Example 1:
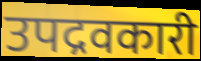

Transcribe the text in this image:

उपद्रवकारी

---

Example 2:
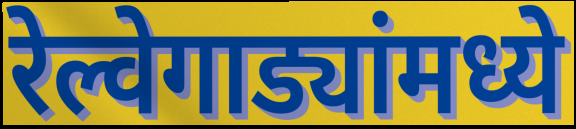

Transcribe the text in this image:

रेल्वेगाड्यांमध्ये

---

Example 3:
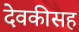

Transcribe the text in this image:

देवकीसह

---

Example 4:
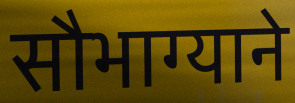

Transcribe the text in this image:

सौभाग्याने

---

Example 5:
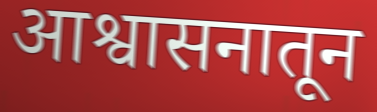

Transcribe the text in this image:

आश्वासनातून